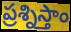
ప్రశ్నిస్తాం